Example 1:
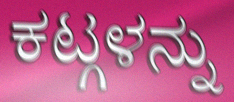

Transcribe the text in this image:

ಕಟ್ಗಳನ್ನು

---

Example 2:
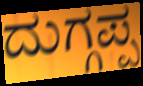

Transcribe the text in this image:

ದುಗ್ಗಪ್ಪ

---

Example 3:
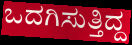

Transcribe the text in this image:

ಒದಗಿಸುತ್ತಿದ್ದ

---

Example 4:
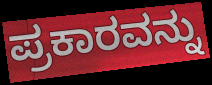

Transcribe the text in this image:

ಪ್ರಕಾರವನ್ನು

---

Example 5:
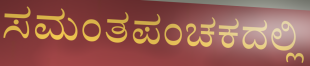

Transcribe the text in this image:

ಸಮಂತಪಂಚಕದಲ್ಲಿ